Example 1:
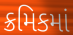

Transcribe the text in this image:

ક્રમિકમાં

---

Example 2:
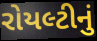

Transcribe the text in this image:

રોયલ્ટીનું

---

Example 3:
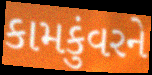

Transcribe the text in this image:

કામકુંવરને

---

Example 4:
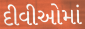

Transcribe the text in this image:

દીવીઓમાં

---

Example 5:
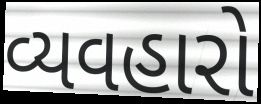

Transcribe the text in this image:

વ્યવહારો